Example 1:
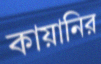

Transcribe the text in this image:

কায়ানির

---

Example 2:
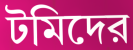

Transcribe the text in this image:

টমিদের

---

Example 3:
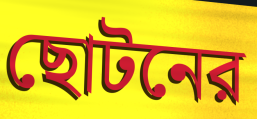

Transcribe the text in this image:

ছোটনের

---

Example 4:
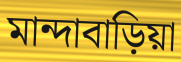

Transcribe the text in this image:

মান্দাবাড়িয়া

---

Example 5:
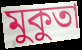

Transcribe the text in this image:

মুকুতা